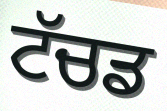
ਟੱਚਡ